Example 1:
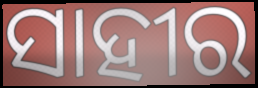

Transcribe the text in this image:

ସାହୀର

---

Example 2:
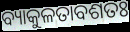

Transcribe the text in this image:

ବ୍ୟାକୁଳତାବଶତଃ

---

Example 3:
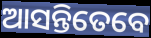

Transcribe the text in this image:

ଆସନ୍ତିତେବେ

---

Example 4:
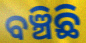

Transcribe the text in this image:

ବଞ୍ଚିଛି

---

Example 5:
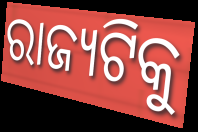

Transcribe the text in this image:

ରାଜ୍ୟଟିକୁ